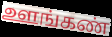
ஊங்கண்